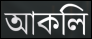
আকলি